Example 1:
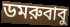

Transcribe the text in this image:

ডমরুবাবু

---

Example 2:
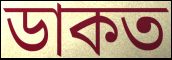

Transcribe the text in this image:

ডাকত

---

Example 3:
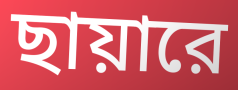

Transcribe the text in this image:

ছায়ারে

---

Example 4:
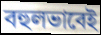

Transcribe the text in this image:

বহুলভাবেই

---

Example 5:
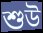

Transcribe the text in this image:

শুউ